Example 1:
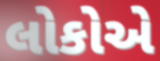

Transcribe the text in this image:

લોકોએ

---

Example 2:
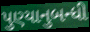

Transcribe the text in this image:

પુણ્યાનુબન્ધી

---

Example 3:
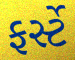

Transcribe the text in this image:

ફર્સ્ટે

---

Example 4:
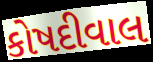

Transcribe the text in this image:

કોષદીવાલ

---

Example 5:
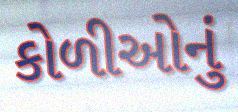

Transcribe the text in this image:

કોળીઓનું